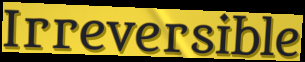
Irreversible